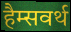
हैम्सवर्थ